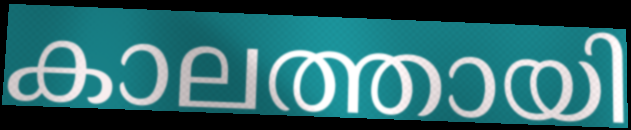
കാലത്തായി